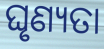
ଘୃଣ୍ୟତା